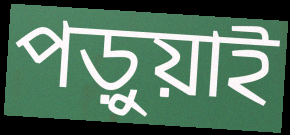
পড়ুয়াই